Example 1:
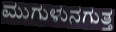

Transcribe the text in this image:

ಮುಗುಳುನಗುತ್ತ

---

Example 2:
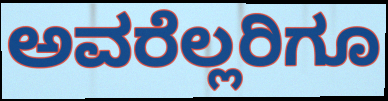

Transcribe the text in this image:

ಅವರೆಲ್ಲರಿಗೂ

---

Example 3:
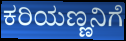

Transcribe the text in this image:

ಕರಿಯಣ್ಣನಿಗೆ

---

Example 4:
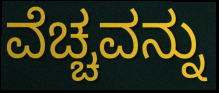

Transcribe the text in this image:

ವೆಚ್ಚವನ್ನು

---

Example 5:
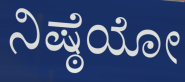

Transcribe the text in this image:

ನಿಷ್ಠೆಯೋ